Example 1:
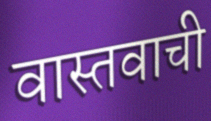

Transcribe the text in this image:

वास्तवाची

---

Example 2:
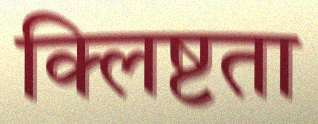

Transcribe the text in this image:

क्‍लिष्टता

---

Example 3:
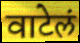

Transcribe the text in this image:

वाटेलं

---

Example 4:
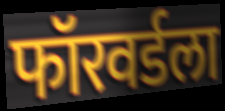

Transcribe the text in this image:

फॉरवर्डला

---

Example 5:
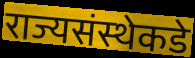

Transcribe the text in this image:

राज्यसंस्थेकडे